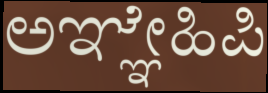
ಅಞ್ಞೇಹಿಪಿ